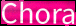
Chora